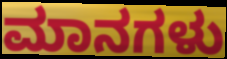
ಮಾನಗಳು